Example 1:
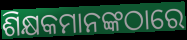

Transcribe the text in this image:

ଶିକ୍ଷକମାନଙ୍କଠାରେ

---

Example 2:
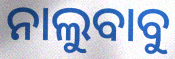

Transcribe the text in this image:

ନାଲୁବାବୁ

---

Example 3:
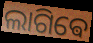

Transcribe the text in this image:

ଲାଗିଵେ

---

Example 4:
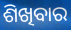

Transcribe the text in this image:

ଶିଖିବାର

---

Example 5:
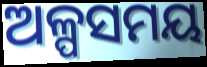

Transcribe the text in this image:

ଅଳ୍ପସମୟ